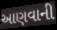
આણવાની